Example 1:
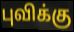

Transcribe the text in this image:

புவிக்கு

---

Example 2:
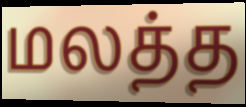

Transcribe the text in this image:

மலத்த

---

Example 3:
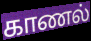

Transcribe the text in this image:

காணல்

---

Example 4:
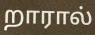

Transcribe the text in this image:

றாரால்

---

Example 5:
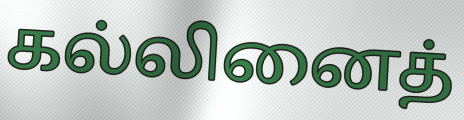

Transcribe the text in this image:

கல்லினைத்